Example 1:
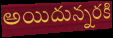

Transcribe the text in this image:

అయిదున్నరకి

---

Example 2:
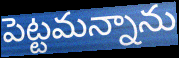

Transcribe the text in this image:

పెట్టమన్నాను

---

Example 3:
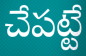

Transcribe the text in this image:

చేపట్టే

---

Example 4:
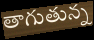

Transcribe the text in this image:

తాగుతున్న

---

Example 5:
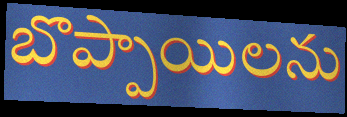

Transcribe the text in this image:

బొప్పాయిలను